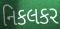
નિકલકર